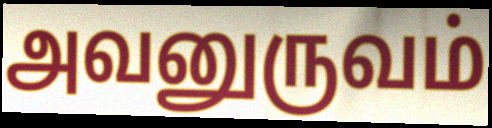
அவனுருவம்